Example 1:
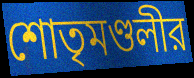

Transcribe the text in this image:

শোতৃমণ্ডলীর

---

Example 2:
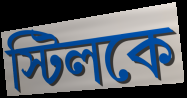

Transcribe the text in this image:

স্টিলকে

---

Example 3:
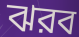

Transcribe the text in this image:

ঝরব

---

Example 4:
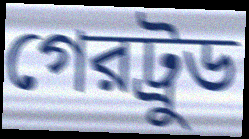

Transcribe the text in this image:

গেরট্রুড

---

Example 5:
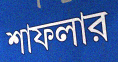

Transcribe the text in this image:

শাফলার